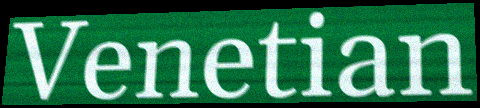
Venetian